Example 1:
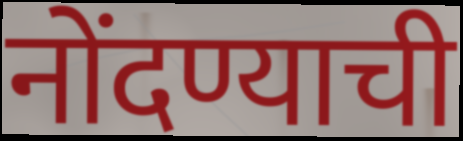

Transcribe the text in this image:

नोंदण्याची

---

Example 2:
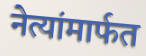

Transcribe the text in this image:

नेत्यांमार्फत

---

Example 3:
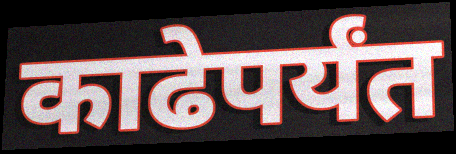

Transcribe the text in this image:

काढेपर्यंत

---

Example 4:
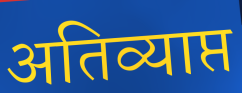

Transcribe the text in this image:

अतिव्याप्त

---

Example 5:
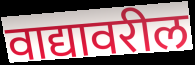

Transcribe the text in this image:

वाद्यावरील